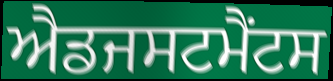
ਐਡਜਸਟਮੈਂਟਸ